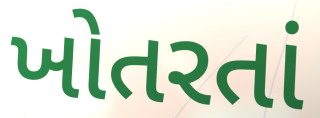
ખોતરતાં